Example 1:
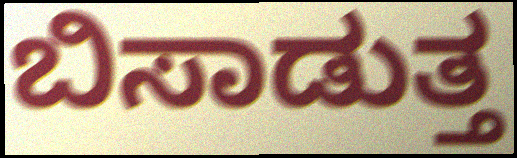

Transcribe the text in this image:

ಬಿಸಾಡುತ್ತ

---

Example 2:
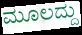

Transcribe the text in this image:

ಮೂಲದ್ದು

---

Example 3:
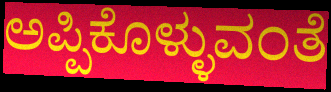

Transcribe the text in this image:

ಅಪ್ಪಿಕೊಳ್ಳುವಂತೆ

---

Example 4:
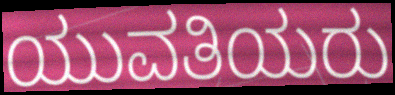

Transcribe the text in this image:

ಯುವತಿಯರು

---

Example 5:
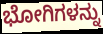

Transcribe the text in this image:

ಭೋಗಿಗಳನ್ನು